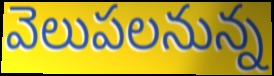
వెలుపలనున్న